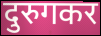
दुरुगकर